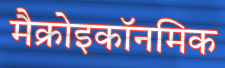
मैक्रोइकॉनमिक